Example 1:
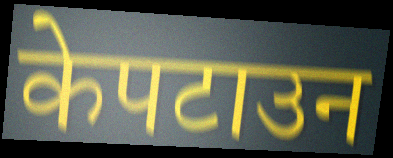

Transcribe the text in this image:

केपटाउन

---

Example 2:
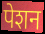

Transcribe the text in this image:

पेशन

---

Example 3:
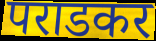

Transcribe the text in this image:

पराडकर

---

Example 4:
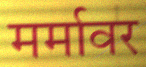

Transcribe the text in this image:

मर्मावर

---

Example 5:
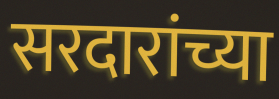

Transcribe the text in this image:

सरदारांच्या